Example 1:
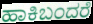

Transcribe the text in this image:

ಹಾಕಿಬಂದರೆ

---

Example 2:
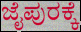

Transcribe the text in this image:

ಜೈಪುರಕ್ಕೆ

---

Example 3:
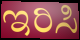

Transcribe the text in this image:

ಇರಿಸಿ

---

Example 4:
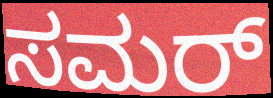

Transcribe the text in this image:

ಸಮರ್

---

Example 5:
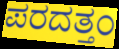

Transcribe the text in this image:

ಪರದತ್ತಂ